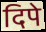
दिपे